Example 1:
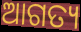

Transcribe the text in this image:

ଆଗତ୍ୟ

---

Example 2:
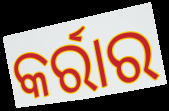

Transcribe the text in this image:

କର୍ରାର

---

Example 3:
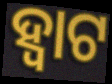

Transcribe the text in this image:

ହ୍ଵାଟ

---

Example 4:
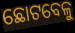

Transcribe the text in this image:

ଛୋଟବେଳୁ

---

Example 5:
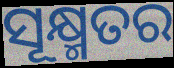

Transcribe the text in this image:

ସୂକ୍ଷ୍ମତର